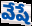
వేషే